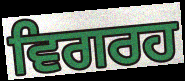
ਵਿਗਰਹ